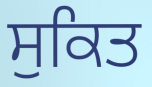
ਸੁਕਿਤ